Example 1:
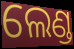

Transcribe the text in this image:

ଲେଣ୍ଡ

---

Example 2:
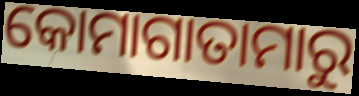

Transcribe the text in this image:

କୋମାଗାତାମାରୁ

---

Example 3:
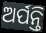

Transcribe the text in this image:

ଅର୍ପନ୍ତି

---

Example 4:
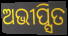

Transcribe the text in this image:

ଅଭୀପ୍ସିତ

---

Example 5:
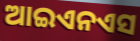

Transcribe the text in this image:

ଆଇଏନଏସ